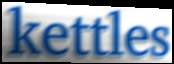
kettles